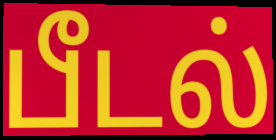
பீடல்